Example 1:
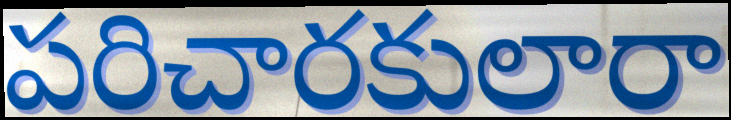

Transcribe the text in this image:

పరిచారకులారా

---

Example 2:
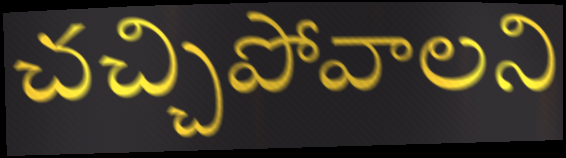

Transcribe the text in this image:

చచ్చిపోవాలని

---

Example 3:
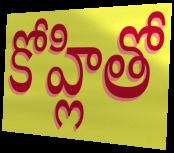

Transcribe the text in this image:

కోహ్లితో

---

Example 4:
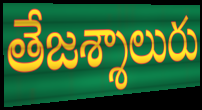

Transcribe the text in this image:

తేజశ్శాలురు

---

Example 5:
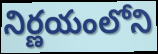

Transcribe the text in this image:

నిర్ణయంలోని